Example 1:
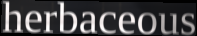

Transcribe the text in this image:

herbaceous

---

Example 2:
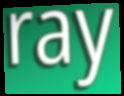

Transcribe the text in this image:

ray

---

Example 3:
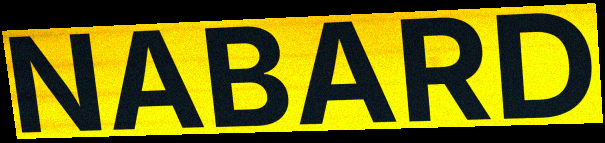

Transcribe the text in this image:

NABARD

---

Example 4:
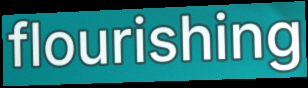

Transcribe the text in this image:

flourishing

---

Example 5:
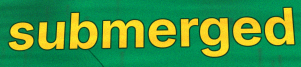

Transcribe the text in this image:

submerged